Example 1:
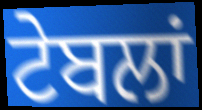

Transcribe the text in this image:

ਟੇਬਲਾਂ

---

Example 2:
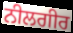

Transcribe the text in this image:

ਨੀਲਗੀਰ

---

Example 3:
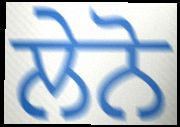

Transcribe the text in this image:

ਲੇਨੋ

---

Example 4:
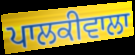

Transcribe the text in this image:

ਪਾਲਕੀਵਾਲਾ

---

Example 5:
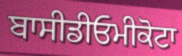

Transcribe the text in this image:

ਬਾਸੀਡੀਓਮੀਕੋਟਾ